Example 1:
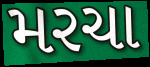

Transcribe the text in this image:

મરચા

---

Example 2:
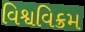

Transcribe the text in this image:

વિશ્વવિક્રમ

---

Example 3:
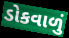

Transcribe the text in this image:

ડોકવાળું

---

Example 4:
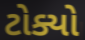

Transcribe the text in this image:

ટોક્યો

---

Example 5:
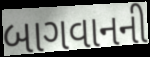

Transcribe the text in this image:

બાગવાનની